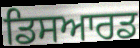
ਡਿਸਆਰਡ